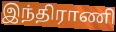
இந்திராணி